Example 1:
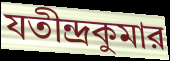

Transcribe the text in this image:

যতীন্দ্রকুমার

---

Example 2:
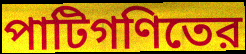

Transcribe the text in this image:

পাটিগণিতের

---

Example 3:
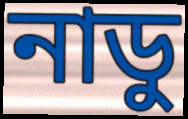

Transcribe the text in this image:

নাডু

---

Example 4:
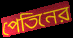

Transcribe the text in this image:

পেতিনের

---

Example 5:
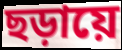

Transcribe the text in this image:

ছড়ায়ে